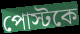
পোস্টকে